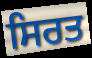
ਸਿਰਤ